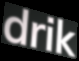
drik